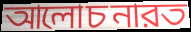
আলোচনারত